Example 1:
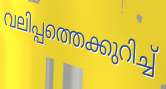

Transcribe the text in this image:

വലിപ്പത്തെക്കുറിച്ച്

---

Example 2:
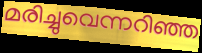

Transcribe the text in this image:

മരിച്ചുവെന്നറിഞ്ഞ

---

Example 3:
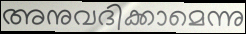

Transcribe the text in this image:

അനുവദിക്കാമെന്നു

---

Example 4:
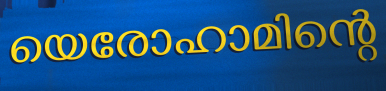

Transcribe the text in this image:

യെരോഹാമിന്റെ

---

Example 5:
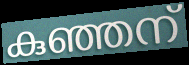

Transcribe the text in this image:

കുഞ്ഞന്